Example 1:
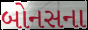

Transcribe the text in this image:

બોનસના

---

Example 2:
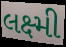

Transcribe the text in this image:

લક્ષ્મી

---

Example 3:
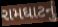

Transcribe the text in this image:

રામઘાટનું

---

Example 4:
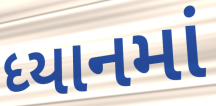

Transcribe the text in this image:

ધ્યાનમાં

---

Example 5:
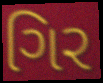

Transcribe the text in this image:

ગિર